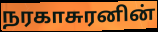
நரகாசுரனின்